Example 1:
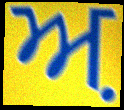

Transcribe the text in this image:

ਅ਼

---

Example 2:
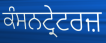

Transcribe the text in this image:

ਕੰਸਨਟ੍ਰੇਟਰਜ਼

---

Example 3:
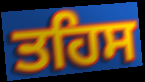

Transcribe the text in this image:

ਤਹਿਸ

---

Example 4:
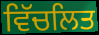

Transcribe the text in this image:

ਵਿੱਚਲਿਤ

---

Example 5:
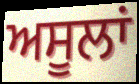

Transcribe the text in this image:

ਅਸੂਲਾਂ